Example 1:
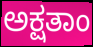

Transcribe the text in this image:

ಅಕ್ಷತಾಂ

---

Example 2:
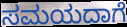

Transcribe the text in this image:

ಸಮಯದಾಗೆ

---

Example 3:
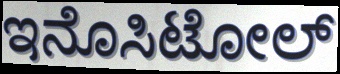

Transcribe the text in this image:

ಇನೊಸಿಟೋಲ್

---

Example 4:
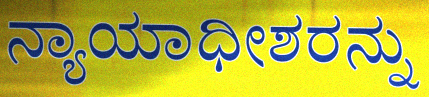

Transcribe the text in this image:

ನ್ಯಾಯಾಧೀಶರನ್ನು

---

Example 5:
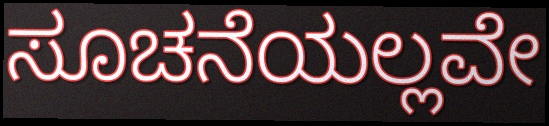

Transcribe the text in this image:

ಸೂಚನೆಯಲ್ಲವೇ